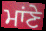
ਮਾਂਣੇ